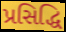
પ્રસિદ્ધિ